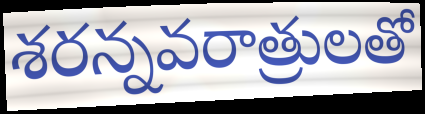
శరన్నవరాత్రులతో